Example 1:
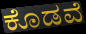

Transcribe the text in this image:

ಕೊಡವೆ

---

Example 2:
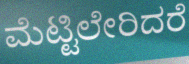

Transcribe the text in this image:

ಮೆಟ್ಟಿಲೇರಿದರೆ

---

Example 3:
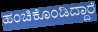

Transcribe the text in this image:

ಹಂಚಿಕೊಂಡಿದ್ದಾರೆ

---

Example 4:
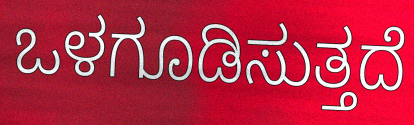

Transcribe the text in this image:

ಒಳಗೂಡಿಸುತ್ತದೆ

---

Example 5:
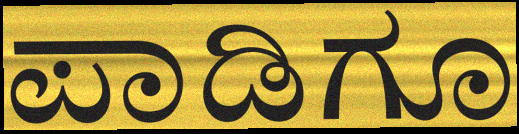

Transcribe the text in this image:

ಪಾಡಿಗೂ